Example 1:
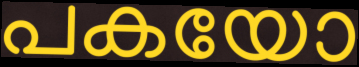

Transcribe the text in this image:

പകയോ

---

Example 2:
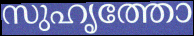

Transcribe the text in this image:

സുഹൃത്തോ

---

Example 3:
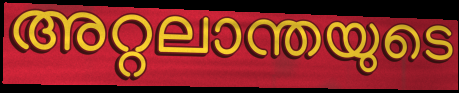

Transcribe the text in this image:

അറ്റലാന്തയുടെ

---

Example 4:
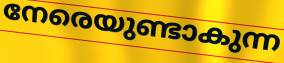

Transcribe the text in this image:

നേരെയുണ്ടാകുന്ന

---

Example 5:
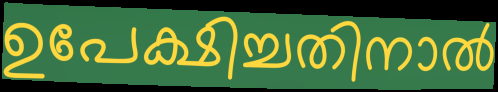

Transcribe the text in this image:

ഉപേക്ഷിച്ചതിനാൽ